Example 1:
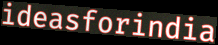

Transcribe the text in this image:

ideasforindia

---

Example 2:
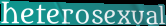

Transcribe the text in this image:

heterosexual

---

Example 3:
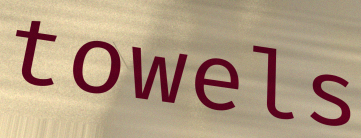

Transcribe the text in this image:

towels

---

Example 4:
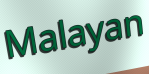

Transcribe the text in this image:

Malayan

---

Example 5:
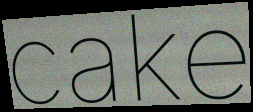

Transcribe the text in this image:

cake